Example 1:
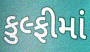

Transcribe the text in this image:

કુલ્ફીમાં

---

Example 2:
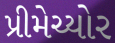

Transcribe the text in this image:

પ્રીમેચ્યોર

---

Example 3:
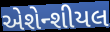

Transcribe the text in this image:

એશેન્શીયલ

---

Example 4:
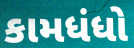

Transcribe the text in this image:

કામધંધો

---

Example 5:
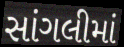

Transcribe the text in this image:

સાંગલીમાં